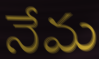
నేమ